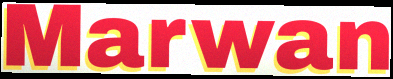
Marwan